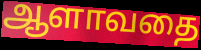
ஆளாவதை